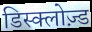
डिस्क्लोज़्ड